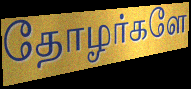
தோழர்களே